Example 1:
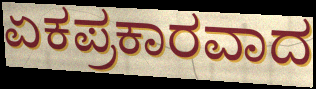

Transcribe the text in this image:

ಏಕಪ್ರಕಾರವಾದ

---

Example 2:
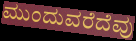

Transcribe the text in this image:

ಮುಂದುವರೆದೆವು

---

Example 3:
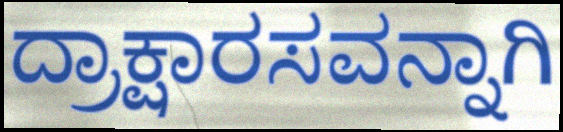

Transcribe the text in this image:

ದ್ರಾಕ್ಷಾರಸವನ್ನಾಗಿ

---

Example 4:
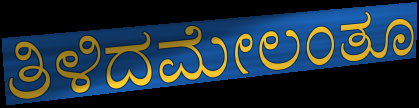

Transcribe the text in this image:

ತಿಳಿದಮೇಲಂತೂ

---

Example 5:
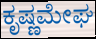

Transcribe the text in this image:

ಕೃಷ್ಣಮೇಘ